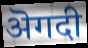
ऄगदी